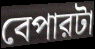
বেপারটা